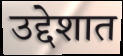
उद्देशात